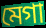
মেগা